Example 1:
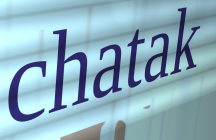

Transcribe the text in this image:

chatak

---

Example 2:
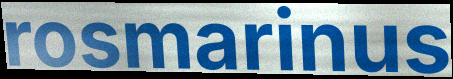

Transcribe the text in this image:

rosmarinus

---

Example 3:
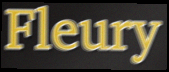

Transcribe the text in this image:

Fleury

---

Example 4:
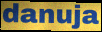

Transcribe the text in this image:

danuja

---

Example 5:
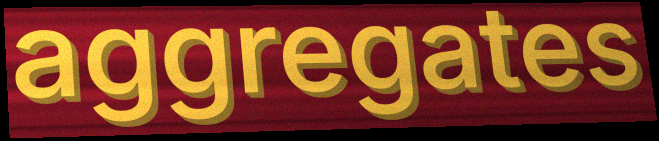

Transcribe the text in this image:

aggregates